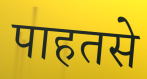
पाहतसे